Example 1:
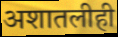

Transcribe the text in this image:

अशातलीही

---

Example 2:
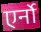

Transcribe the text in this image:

एर्नो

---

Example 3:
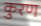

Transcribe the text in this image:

कुरण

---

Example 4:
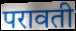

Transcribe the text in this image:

परावती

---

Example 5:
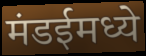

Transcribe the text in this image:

मंडईमध्ये